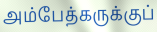
அம்பேத்கருக்குப்